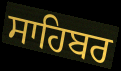
ਸਾਹਿਬਰ